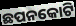
ଛପନକୋଟି